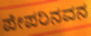
ಪೇಪರಿನವನ